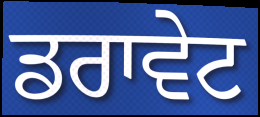
ਡਰਾਵੇਟ